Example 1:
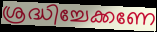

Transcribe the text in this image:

ശ്രദ്ധിച്ചേക്കണേ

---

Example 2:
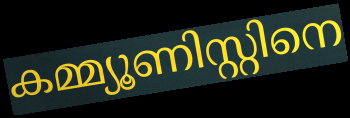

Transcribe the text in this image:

കമ്മ്യൂണിസ്റ്റിനെ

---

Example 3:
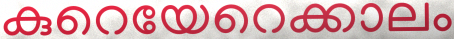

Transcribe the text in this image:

കുറെയേറെക്കാലം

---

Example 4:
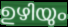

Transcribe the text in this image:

ഉഴിയും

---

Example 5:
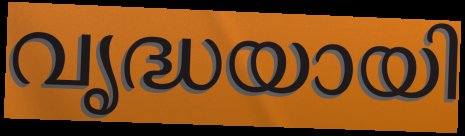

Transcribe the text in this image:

വൃദ്ധയായി